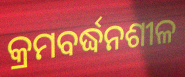
କ୍ରମବର୍ଦ୍ଧନଶୀଳ